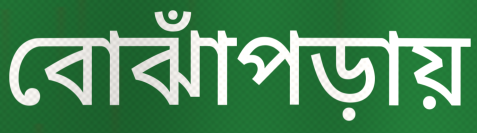
বোঝাঁপড়ায়